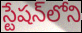
స్టేషన్‌లోని